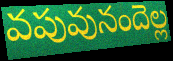
వపువునందెల్ల